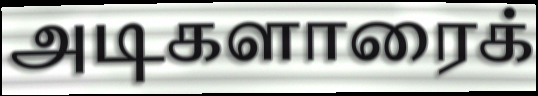
அடிகளாரைக்